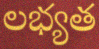
లభ్యత